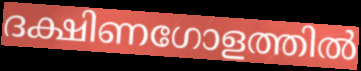
ദക്ഷിണഗോളത്തിൽ